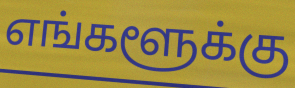
எங்களூக்கு